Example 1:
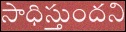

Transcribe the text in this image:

సాధిస్తుందని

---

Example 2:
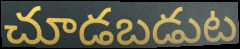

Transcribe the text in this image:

చూడబడుట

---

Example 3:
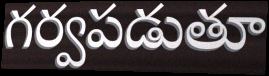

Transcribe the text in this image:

గర్వపడుతూ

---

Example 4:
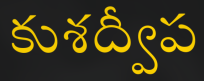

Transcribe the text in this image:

కుశద్వీప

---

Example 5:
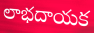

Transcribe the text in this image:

లాభదాయక